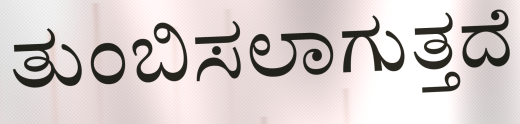
ತುಂಬಿಸಲಾಗುತ್ತದೆ